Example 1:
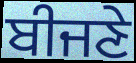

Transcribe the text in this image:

ਬੀਜਣੇ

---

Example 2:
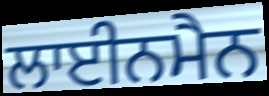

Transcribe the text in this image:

ਲਾਈਨਮੈਨ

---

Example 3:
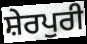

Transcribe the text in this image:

ਸ਼ੇਰਪੁਰੀ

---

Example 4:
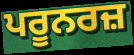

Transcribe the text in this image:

ਪਰੂਨਰਜ਼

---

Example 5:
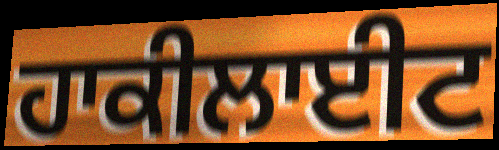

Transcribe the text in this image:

ਹਾਕੀਲਾਈਟ